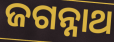
ଜଗନ୍ନାଥ